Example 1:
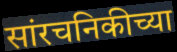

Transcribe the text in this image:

सांरचनिकीच्या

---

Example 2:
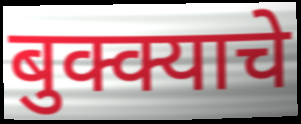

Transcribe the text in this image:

बुक्क्याचे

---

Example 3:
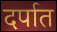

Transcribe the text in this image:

दर्पात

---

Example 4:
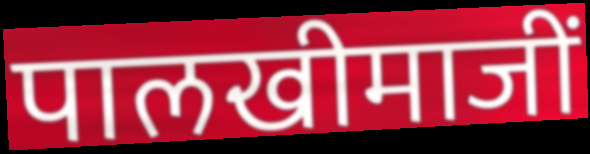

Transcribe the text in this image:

पालखीमाजीं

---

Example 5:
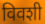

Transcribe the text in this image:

विवशी